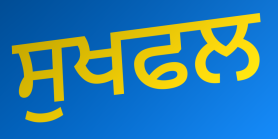
ਸੁਖਫਲ